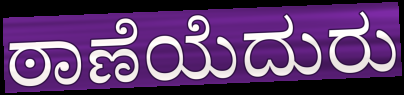
ಠಾಣೆಯೆದುರು